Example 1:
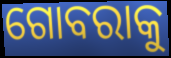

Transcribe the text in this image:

ଗୋବରାକୁ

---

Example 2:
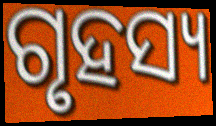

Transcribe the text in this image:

ଗୃହସ୍ୟ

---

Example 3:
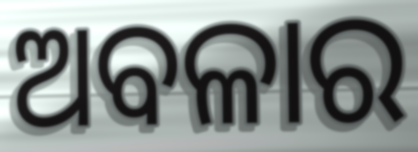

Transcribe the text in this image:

ଅବଳାର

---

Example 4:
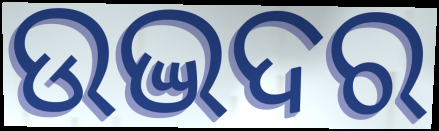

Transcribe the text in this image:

ଉଦ୍ଭଦର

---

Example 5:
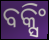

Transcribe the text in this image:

ବକ୍ସିଂ